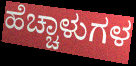
ಹೆಚ್ಚಾಳುಗಳ